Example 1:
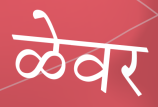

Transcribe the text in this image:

ळेवर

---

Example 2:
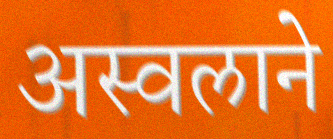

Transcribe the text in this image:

अस्वलाने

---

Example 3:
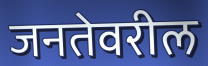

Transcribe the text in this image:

जनतेवरील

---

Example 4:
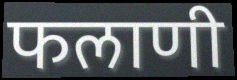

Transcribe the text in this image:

फलाणी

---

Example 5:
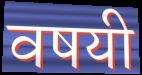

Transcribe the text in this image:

वषयी